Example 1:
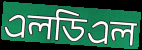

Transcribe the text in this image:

এলডিএল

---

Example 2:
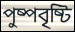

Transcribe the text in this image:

পুষ্পবৃষ্টি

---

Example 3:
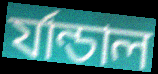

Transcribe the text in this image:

র্যান্ডাল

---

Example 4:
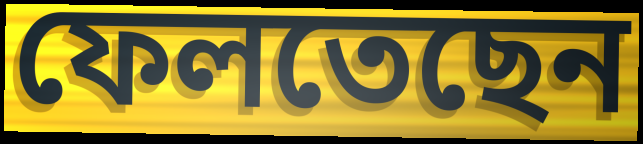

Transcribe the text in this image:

ফেলতেছেন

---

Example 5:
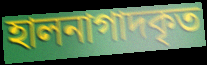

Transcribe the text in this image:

হালনাগাদকৃত